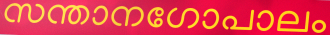
സന്താനഗോപാലം